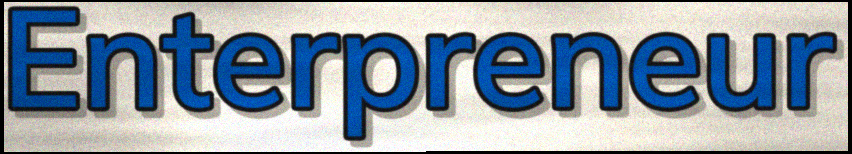
Enterpreneur